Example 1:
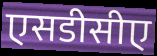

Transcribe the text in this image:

एसडीसीए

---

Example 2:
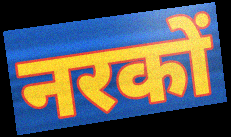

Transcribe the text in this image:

नरकों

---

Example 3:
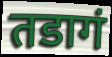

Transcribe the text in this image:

तडागं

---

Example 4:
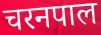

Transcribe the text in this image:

चरनपाल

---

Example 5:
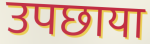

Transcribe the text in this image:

उपछाया